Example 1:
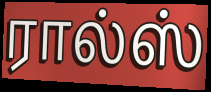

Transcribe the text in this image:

ரால்ஸ்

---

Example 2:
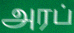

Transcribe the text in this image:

அரப்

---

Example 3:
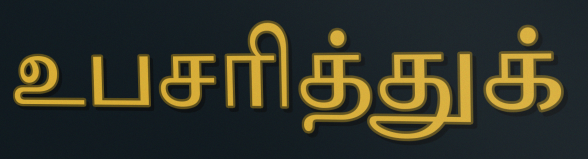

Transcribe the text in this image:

உபசரித்துக்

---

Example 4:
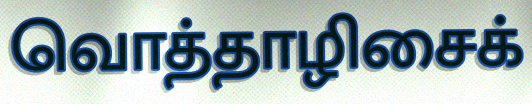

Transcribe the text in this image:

வொத்தாழிசைக்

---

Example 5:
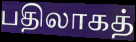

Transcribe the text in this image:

பதிலாகத்